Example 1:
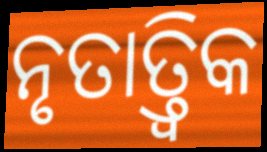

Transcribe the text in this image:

ନୃତାତ୍ତ୍ବିକ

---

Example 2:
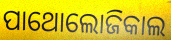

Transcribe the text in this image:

ପାଥୋଲୋଜିକାଲ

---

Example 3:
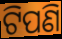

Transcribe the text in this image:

ଟିପଣି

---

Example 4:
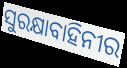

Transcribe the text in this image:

ସୁରକ୍ଷାବାହିନୀର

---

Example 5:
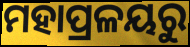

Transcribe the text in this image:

ମହାପ୍ରଳୟରୁ